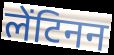
लेंटिनन